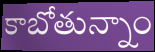
కాబోతున్నాం